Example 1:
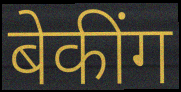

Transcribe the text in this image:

बेकींग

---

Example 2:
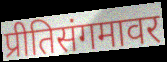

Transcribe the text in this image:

प्रीतिसंगमावर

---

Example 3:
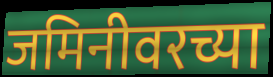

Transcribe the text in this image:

जमिनीवरच्या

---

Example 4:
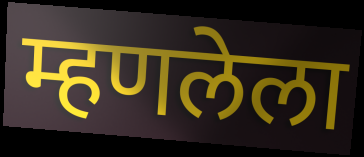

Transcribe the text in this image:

म्हणलेला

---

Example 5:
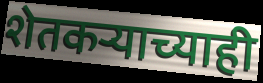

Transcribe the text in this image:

शेतकऱ्याच्याही